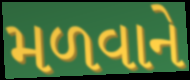
મળવાને